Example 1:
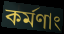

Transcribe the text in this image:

কর্মণাং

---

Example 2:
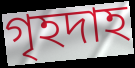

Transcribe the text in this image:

গৃহদাহ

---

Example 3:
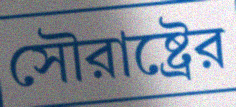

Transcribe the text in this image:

সৌরাষ্ট্রের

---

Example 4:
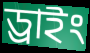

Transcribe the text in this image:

ড্রাইং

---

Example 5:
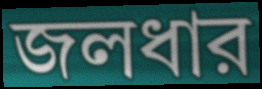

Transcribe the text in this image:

জলধার